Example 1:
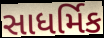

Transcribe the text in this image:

સાધર્મિક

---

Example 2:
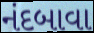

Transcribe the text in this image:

નંદબાવા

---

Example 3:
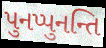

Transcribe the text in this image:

પુનપ્પુનન્તિ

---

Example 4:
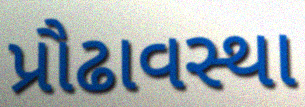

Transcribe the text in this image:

પ્રૌઢાવસ્થા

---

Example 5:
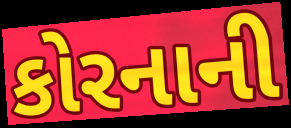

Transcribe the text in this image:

કોરનાની